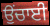
ਉਂਚਾਈ